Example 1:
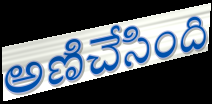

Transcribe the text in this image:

అణిచేసింది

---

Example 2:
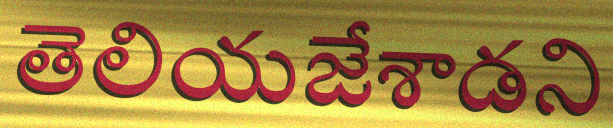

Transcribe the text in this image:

తెలియజేశాడని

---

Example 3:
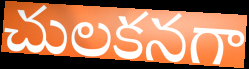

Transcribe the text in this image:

చులకనగా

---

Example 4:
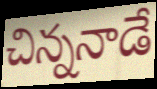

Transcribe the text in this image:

చిన్ననాడే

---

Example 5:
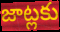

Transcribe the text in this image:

జాట్లకు